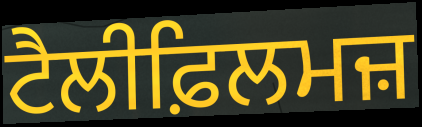
ਟੈਲੀਫ਼ਿਲਮਜ਼